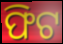
ଫିଟ